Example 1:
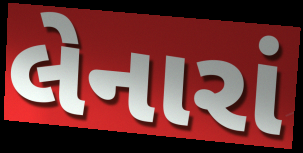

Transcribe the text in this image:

લેનારાં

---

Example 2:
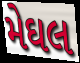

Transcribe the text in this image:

મેઘલ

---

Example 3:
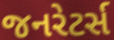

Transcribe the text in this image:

જનરેટર્સ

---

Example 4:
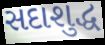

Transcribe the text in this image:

સદાશુદ્ધ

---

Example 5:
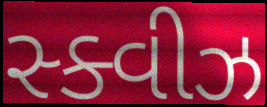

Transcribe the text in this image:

સ્ક્વીઝ